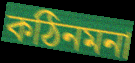
কঠিনমনা